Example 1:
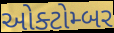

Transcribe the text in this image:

ઓક્ટોમ્બર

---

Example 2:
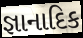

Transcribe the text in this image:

જ્ઞાનાદિક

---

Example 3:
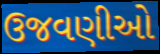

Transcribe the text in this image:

ઉજવણીઓ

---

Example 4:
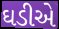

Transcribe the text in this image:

ઘડીએ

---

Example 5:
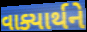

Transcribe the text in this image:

વાક્યાર્થને